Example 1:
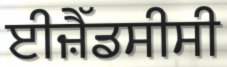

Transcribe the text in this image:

ਈਜ਼ੈੱਡਸੀਸੀ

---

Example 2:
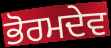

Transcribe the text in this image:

ਭੋਰਮਦੇਵ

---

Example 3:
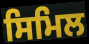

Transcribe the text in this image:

ਸਿਮਿਲ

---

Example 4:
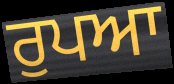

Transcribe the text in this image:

ਰੁਪਆ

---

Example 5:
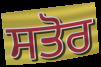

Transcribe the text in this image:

ਸਤੋਰ